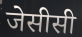
जेसीसी